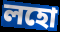
লহো